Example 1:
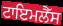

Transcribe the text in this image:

ਟਾਇਮਲੈੱਸ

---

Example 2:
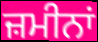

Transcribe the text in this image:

ਜ਼ਮੀਨਾਂ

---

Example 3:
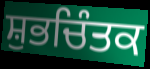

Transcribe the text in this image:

ਸ਼ੁਭਚਿੰਤਕ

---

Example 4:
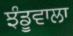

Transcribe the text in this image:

ਝੰਡੂਵਾਲਾ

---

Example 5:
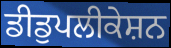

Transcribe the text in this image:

ਡੀਡੁਪਲੀਕੇਸ਼ਨ